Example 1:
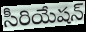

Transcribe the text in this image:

సీరియేషన్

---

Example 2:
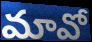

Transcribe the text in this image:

మావో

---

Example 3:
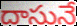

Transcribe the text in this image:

దాసునే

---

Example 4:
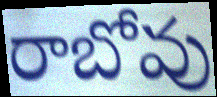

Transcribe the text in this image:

రాబోవు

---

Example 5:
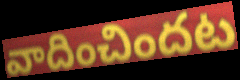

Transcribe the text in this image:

వాదించిందట